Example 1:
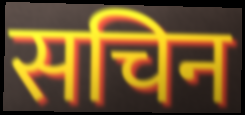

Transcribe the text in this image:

सचिन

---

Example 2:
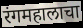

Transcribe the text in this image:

रंगमहालाचा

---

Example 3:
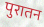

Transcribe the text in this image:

पुरातन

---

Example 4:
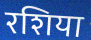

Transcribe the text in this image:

रशिया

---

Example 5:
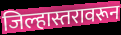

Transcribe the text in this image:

जिल्हास्तरावरून